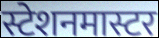
स्टेशनमास्टर